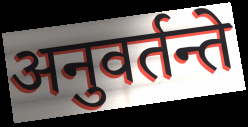
अनुवर्तन्ते